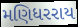
મણિધરરાય